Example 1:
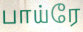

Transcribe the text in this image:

பாய்ரே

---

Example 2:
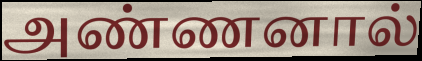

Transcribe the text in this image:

அண்ணனால்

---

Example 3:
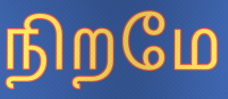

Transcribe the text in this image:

நிறமே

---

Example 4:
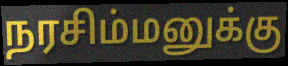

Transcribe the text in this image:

நரசிம்மனுக்கு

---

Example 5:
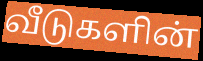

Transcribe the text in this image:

வீடுகளின்